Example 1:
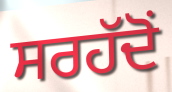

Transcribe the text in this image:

ਸਰਹੱਦੋਂ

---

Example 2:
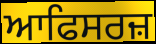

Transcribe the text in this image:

ਆਫਿਸਰਜ਼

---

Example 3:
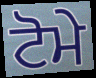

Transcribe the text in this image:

ਟੋਮੇ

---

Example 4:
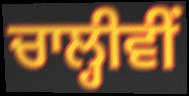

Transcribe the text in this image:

ਚਾਲ੍ਹੀਵੀਂ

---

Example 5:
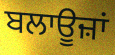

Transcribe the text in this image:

ਬਲਾਊਜ਼ਾਂ